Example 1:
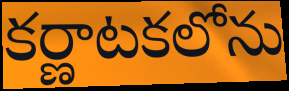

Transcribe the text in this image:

కర్ణాటకలోను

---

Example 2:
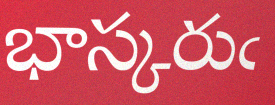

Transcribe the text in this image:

భాస్కరుఁ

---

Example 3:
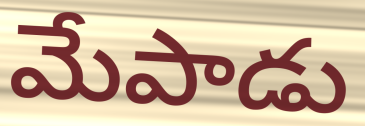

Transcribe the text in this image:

మేపాడు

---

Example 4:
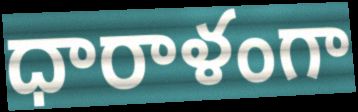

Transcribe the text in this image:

ధారాళంగా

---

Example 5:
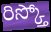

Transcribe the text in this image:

రిస్క్తో